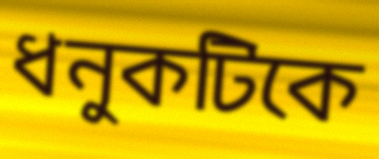
ধনুকটিকে